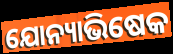
ଯୋନ୍ୟାଭିଷେକ